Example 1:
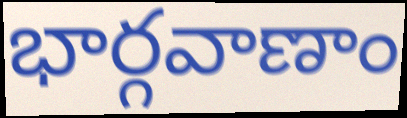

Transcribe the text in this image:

భార్గవాణాం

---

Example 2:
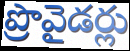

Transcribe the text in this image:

ప్రొవైడర్లు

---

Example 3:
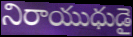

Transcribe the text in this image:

నిరాయుధుడై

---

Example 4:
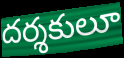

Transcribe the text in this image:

దర్శకులూ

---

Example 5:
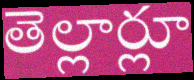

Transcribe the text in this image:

తెల్లార్లూ